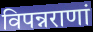
विपन्नराणां